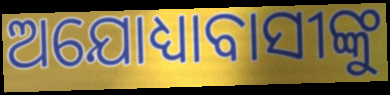
ଅଯୋଧ୍ୟାବାସୀଙ୍କୁ